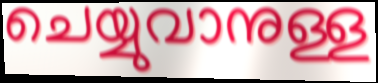
ചെയ്യുവാനുള്ള